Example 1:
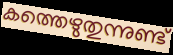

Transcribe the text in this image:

കത്തെഴുതുന്നുണ്ട്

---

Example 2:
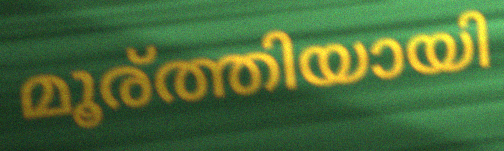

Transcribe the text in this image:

മൂര്ത്തിയായി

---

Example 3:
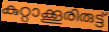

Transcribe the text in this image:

കുറ്റാക്കൂരിരുട്ട്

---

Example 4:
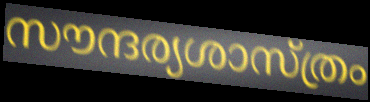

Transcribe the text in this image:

സൗന്ദര്യശാസ്ത്രം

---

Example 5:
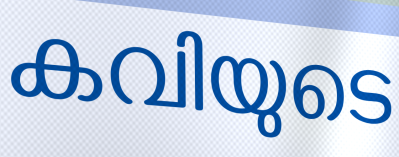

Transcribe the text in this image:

കവിയുടെ